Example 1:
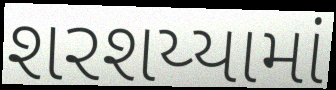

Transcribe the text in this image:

શરશય્યામાં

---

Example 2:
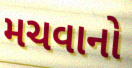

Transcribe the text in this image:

મચવાનો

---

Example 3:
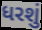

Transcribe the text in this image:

ધરશું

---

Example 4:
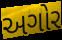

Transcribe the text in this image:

અગોર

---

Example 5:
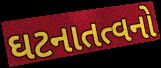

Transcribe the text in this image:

ઘટનાતત્વનો